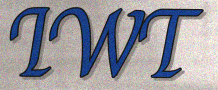
IWT